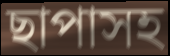
ছাপাসহ